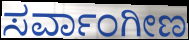
ಸರ್ವಾಂಗೀಣ